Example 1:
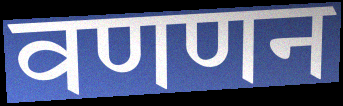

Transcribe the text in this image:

वणणन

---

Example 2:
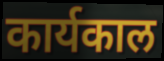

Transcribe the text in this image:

कार्यकाल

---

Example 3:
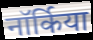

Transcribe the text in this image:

नॉर्किया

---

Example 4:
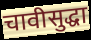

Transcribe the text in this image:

चावीसुद्धा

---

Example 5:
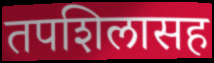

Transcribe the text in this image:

तपशिलासह